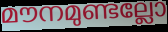
മൗനമുണ്ടല്ലോ